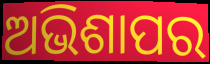
ଅଭିଶାପର